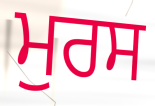
ਮੁਰਸ